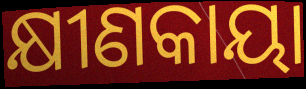
କ୍ଷୀଣକାୟା